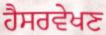
ਹੈਸਰਵੇਖਣ